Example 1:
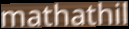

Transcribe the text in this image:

mathathil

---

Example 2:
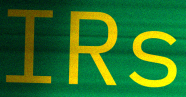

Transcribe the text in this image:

IRs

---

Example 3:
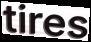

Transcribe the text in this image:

tires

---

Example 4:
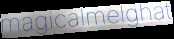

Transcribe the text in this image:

magicalmelghat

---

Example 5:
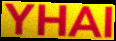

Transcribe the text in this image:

YHAI